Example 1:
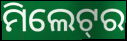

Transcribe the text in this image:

ମିଲେଟ୍‌ର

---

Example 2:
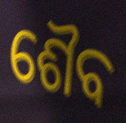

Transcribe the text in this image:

ଶୈବ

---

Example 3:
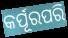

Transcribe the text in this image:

କର୍ପୂରପରି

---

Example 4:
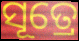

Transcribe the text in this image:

ସୂତ୍ରେ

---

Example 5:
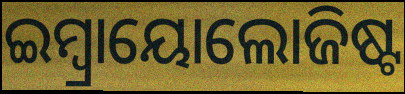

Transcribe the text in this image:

ଇମ୍ବ୍ରାୟୋଲୋଜିଷ୍ଟ